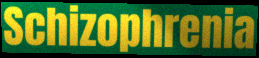
Schizophrenia